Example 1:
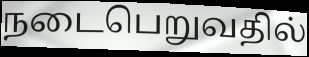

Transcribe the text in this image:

நடைபெறுவதில்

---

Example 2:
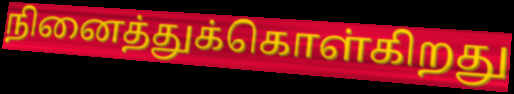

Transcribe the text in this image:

நினைத்துக்கொள்கிறது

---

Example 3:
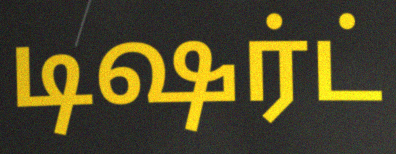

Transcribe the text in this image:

டிஷர்ட்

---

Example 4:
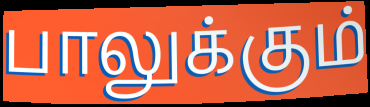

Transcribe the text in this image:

பாலுக்கும்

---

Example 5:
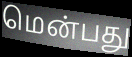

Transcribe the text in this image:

மென்பது